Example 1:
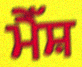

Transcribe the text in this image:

ਮੈੱਸ਼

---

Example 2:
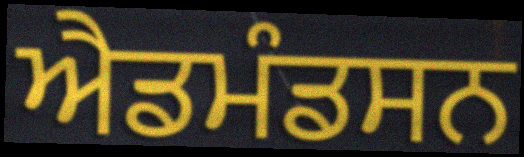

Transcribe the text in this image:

ਐਡਮੰਡਸਨ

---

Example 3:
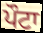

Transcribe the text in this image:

ਪੌਟਾ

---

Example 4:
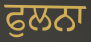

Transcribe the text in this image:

ਫੁਲਨਾ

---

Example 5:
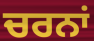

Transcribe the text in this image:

ਚਰਨਾਂ